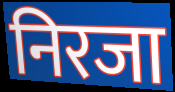
निरजा